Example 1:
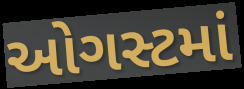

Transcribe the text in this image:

ઓગસ્ટમાં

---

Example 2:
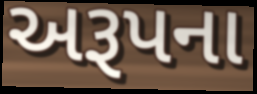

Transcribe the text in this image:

અરૂપના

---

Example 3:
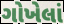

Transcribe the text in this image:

ગોખેલાં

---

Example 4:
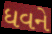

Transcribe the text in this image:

ધવને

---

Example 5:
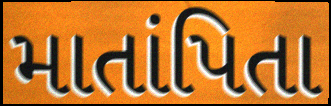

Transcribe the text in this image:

માતાંપિતા